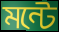
মন্টে